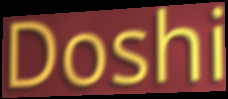
Doshi